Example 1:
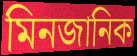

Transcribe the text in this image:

মিনজানিক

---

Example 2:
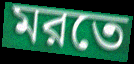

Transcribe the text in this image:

মরতে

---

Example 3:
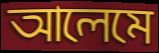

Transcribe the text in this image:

আলেমে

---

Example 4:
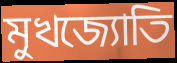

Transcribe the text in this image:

মুখজ্যোতি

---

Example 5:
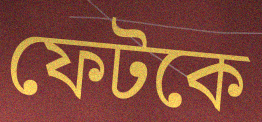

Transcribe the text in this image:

ফেটকে